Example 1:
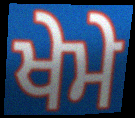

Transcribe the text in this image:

ਖੇਮੇ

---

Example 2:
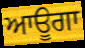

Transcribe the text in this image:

ਆਊਗਾ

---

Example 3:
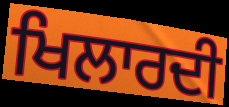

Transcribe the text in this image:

ਖਿਲਾਰਦੀ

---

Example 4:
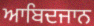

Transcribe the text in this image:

ਆਬਿਦਜਾਨ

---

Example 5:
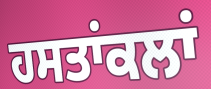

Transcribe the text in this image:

ਹਸਤਾਂਕਲਾਂ